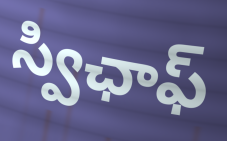
స్విఛాఫ్